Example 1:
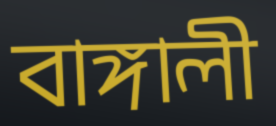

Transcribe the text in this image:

বাঙ্গালী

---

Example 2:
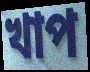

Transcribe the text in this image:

খাপ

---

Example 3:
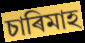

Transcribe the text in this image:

চাৰিমাহ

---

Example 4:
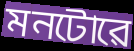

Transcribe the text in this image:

মনটোৱে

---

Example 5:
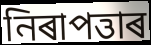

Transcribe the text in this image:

নিৰাপত্তাৰ